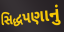
સિદ્ધપણાનું